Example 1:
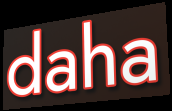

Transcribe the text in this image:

daha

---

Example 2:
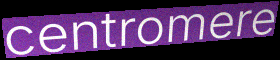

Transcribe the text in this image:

centromere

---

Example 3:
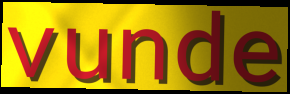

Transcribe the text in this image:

vunde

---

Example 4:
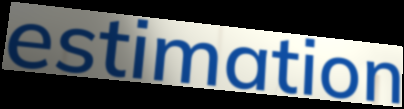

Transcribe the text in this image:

estimation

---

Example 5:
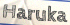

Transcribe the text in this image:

Haruka